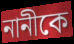
নানীকে